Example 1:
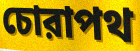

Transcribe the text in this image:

চোরাপথ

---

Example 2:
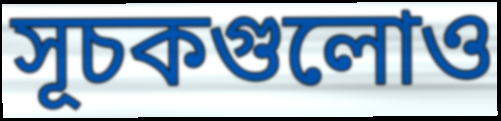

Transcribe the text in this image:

সূচকগুলোও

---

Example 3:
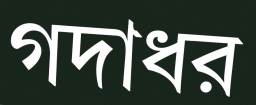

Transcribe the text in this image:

গদাধর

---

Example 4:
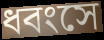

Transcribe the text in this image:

ধবংসে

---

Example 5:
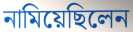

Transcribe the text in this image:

নামিয়েছিলেন